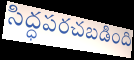
సిద్ధపరచబడింది